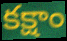
కక్షాం